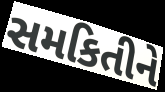
સમકિતીને